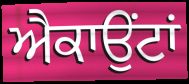
ਐਕਾਉਂਟਾਂ